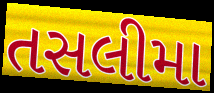
તસલીમા